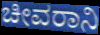
ಚೀವರಾನಿ